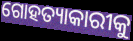
ଗୋହତ୍ୟାକାରୀକୁ